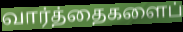
வார்த்தைகளைப்